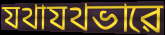
যথাযথভাৱে